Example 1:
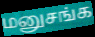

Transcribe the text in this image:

மனுசங்க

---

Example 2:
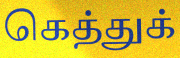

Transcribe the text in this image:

கெத்துக்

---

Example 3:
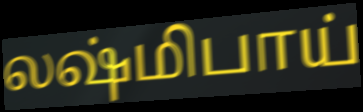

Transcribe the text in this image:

லஷ்மிபாய்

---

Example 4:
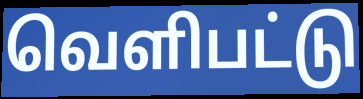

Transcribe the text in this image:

வெளிபட்டு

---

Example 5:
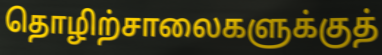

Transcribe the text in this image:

தொழிற்சாலைகளுக்குத்